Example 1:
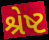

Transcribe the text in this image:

શ્રેષ્ટ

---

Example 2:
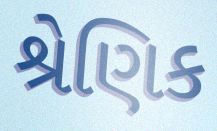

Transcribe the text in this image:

શ્રેણિક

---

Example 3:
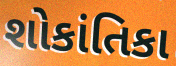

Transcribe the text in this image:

શોકાંતિકા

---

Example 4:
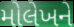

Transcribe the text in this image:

મોલેખને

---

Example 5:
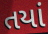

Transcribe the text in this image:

તયાં